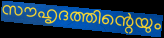
സൗഹൃദത്തിന്റെയും